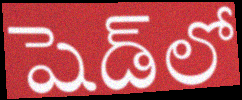
షెడ్‌లో